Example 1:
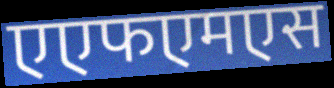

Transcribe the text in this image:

एएफएमएस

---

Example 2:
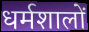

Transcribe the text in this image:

धर्मशालों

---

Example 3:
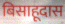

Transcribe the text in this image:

बिसाहूदास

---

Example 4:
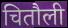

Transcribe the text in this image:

चितौली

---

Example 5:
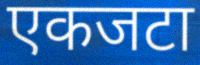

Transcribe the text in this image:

एकजटा